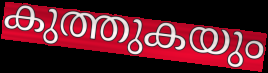
കുത്തുകയും